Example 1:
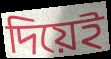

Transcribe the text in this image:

দিয়েই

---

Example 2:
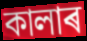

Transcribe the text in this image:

কালাৰ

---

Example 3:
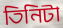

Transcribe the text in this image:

তিনিটা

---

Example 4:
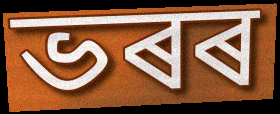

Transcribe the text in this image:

ভৰৰ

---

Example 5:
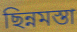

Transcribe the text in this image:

ছিন্নমস্তা